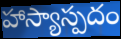
హాస్యాస్పదం